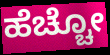
ಹೆಚ್ಚೋ